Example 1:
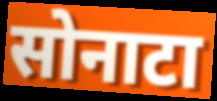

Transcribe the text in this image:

सोनाटा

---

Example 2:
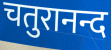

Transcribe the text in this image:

चतुरानन्द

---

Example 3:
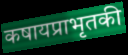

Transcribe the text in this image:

कषायप्राभृतकी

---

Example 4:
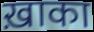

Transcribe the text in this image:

ख़ाका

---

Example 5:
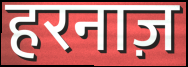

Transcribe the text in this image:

हरनाज़